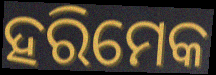
ହରିମେକ